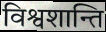
विश्वशान्ति